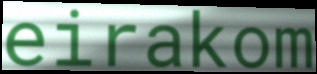
eirakom